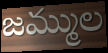
జమ్ముల